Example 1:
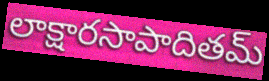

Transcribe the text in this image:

లాక్షారసాపాదితమ్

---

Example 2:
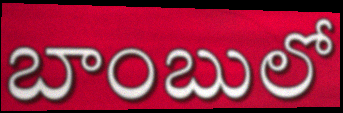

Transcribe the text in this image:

బాంబులో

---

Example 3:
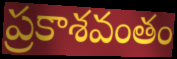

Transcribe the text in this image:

ప్రకాశవంతం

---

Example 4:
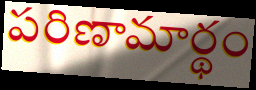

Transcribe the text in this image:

పరిణామార్థం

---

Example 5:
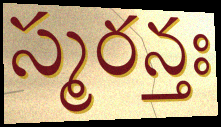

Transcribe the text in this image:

స్మరన్తః